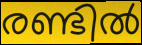
രണ്ടിൽ